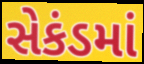
સેકંડમાં